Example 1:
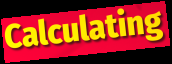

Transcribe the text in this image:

Calculating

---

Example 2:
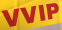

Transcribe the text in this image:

VVIP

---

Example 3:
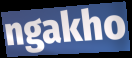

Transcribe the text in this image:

ngakho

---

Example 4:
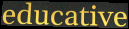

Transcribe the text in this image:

educative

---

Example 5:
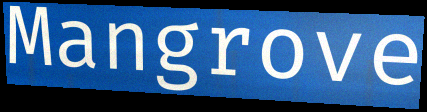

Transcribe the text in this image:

Mangrove